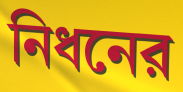
নিধনের